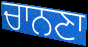
ਚਾਨਣਾ